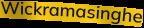
Wickramasinghe